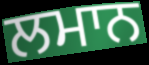
ਲਮਾਨ